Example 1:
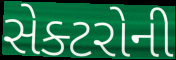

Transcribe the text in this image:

સેક્ટરોની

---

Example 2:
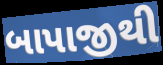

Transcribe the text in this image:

બાપાજીથી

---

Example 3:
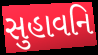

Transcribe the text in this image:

સુહાવનિ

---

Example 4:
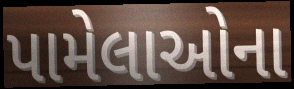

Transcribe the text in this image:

પામેલાઓના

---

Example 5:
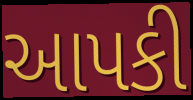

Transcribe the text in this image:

આપકી